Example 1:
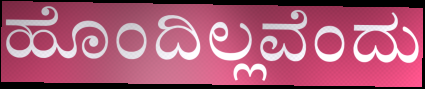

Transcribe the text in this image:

ಹೊಂದಿಲ್ಲವೆಂದು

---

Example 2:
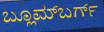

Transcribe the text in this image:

ಬ್ಲೂಮ್‌ಬರ್ಗ್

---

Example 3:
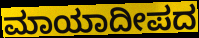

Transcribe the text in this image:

ಮಾಯಾದೀಪದ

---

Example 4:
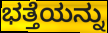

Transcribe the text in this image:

ಭತ್ತೆಯನ್ನು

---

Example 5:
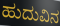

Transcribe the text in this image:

ಹುದುವಿನ